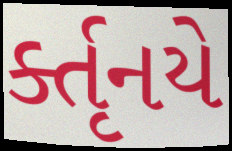
ર્ક્તૃનયે